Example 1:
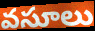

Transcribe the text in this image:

వసూలు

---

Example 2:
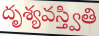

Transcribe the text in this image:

దృశ్యవస్త్వితి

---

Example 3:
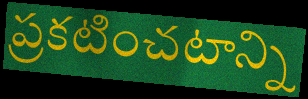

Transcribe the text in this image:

ప్రకటించటాన్ని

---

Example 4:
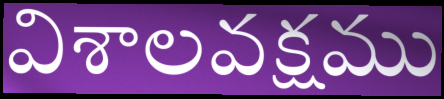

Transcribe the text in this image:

విశాలవక్షము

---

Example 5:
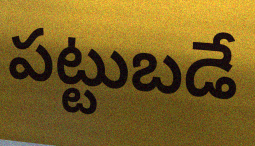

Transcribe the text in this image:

పట్టుబడే